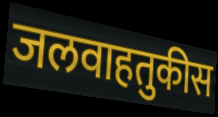
जलवाहतुकीस